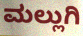
ಮಲ್ಲುಗಿ